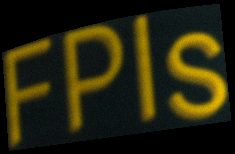
FPIs